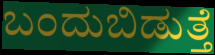
ಬಂದುಬಿಡುತ್ತೆ